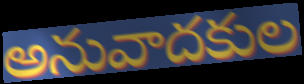
అనువాదకుల